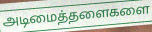
அடிமைத்தளைகளை